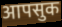
आपसुक